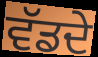
ਵੱਡਦੇ